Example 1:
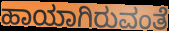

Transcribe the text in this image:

ಹಾಯಾಗಿರುವಂತೆ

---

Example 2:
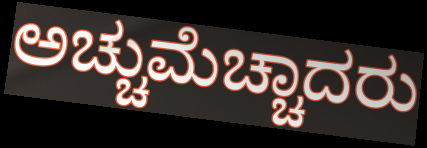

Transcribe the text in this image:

ಅಚ್ಚುಮೆಚ್ಚಾದರು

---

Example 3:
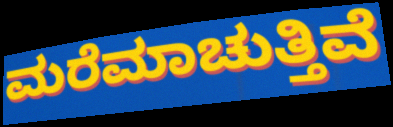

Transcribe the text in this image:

ಮರೆಮಾಚುತ್ತಿವೆ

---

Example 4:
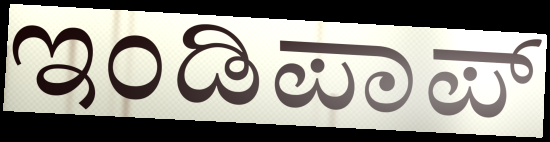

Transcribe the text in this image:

ಇಂಡಿಪಾಪ್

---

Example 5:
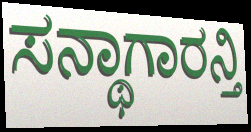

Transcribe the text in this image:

ಸನ್ಥಾಗಾರನ್ತಿ